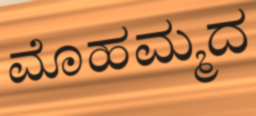
ಮೊಹಮ್ಮದ